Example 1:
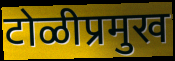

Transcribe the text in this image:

टोळीप्रमुख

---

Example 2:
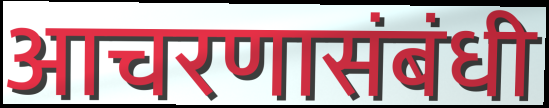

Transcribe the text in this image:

आचरणासंबंधी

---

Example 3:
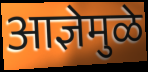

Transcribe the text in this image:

आज्ञेमुळे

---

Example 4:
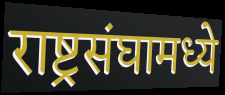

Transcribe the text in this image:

राष्ट्रसंघामध्ये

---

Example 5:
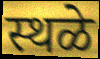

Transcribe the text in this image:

स्थळे